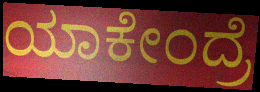
ಯಾಕೇಂದ್ರೆ